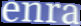
enra